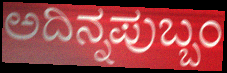
ಅದಿನ್ನಪುಬ್ಬಂ